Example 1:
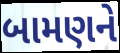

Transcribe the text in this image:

બામણને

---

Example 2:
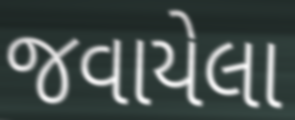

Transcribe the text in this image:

જવાયેલા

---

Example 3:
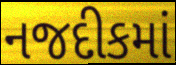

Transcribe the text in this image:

નજદીકમાં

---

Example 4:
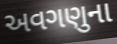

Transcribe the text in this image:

અવગણુના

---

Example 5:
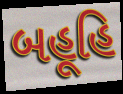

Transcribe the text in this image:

બહૂહિ